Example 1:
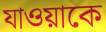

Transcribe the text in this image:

যাওয়াকে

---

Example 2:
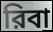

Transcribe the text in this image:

রিবা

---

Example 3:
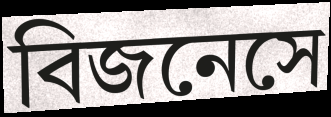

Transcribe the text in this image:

বিজনেসে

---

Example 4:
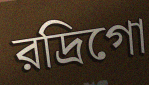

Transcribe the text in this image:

রদ্রিগো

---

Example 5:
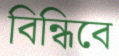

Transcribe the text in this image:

বিন্ধিবে